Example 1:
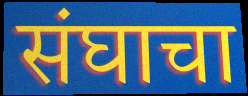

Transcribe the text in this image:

संघाचा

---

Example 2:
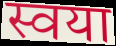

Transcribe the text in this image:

स्वया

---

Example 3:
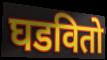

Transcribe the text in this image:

घडवितो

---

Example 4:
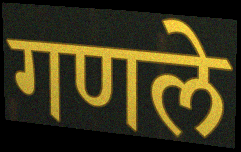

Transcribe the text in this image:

गणले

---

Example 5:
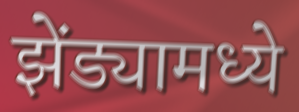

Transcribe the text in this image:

झेंड्यामध्ये